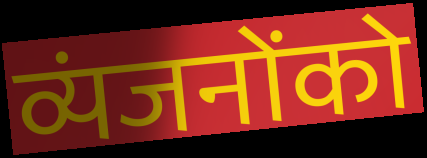
व्यंजनोंको